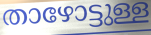
താഴോട്ടുള്ള